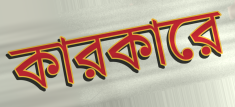
কারকারে